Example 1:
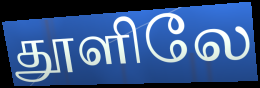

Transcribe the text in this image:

தூளிலே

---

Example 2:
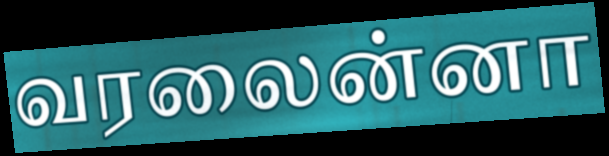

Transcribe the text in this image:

வரலைன்னா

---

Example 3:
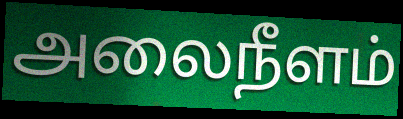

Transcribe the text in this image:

அலைநீளம்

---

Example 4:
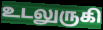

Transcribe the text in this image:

உடலுருகி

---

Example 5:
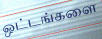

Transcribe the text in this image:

ஒட்டங்களை